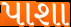
પાશા